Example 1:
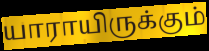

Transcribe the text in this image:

யாராயிருக்கும்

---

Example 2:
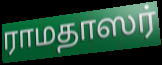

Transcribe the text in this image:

ராமதாஸர்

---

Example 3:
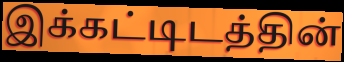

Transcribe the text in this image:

இக்கட்டிடத்தின்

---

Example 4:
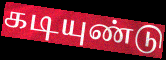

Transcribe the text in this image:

கடியுண்டு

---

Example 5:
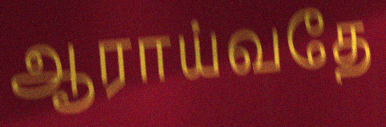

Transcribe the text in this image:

ஆராய்வதே